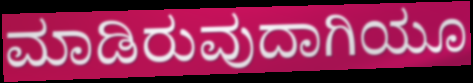
ಮಾಡಿರುವುದಾಗಿಯೂ